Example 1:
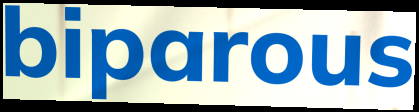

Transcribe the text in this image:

biparous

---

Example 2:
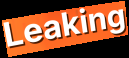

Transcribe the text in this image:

Leaking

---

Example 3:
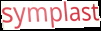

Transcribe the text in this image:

symplast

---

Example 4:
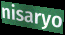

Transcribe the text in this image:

nisaryo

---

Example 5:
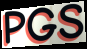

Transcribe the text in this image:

PGS